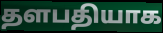
தளபதியாக